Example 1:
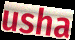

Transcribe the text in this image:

usha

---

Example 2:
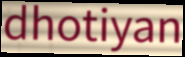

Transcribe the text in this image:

dhotiyan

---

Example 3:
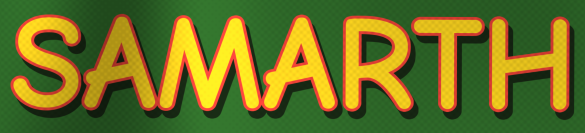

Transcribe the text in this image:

SAMARTH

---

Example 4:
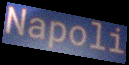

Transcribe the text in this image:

Napoli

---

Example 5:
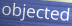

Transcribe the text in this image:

objected